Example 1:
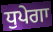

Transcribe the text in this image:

ਧੁਪੇਗਾ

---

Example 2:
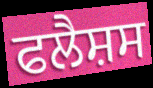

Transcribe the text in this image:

ਫਲੈਸ਼ਸ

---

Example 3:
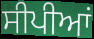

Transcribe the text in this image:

ਸੀਪੀਆਂ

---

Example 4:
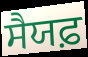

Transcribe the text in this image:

ਸੈਯਫ਼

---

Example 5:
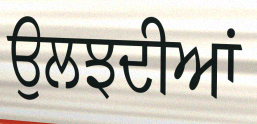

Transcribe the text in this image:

ਉਲਝਦੀਆਂ